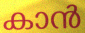
കാൻ